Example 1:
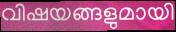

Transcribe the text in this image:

വിഷയങ്ങളുമായി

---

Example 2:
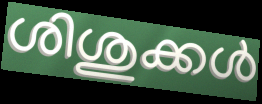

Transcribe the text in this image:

ശിശുക്കൾ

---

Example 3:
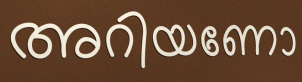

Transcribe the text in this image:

അറിയണോ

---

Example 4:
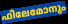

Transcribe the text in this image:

ഫിലേമോനും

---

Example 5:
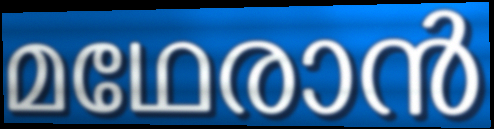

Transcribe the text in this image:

മഥേരാൻ